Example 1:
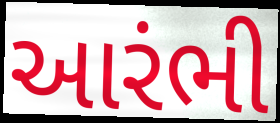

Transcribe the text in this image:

આરંભી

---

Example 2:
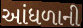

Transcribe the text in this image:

આંધળાની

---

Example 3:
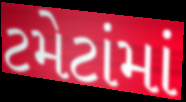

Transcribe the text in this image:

ટમેટાંમાં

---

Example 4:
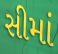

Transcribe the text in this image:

સીમાં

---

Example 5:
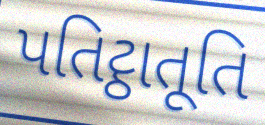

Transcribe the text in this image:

પતિટ્ઠાતૂતિ